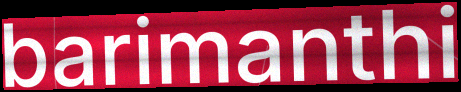
barimanthi